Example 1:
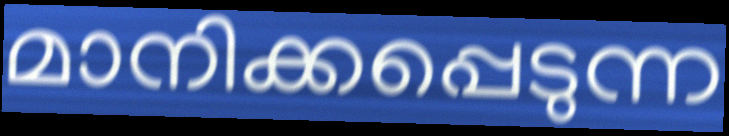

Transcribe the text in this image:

മാനിക്കപ്പെടുന്ന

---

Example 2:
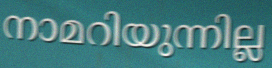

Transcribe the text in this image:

നാമറിയുന്നില്ല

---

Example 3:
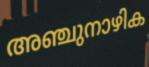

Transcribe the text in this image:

അഞ്ചുനാഴിക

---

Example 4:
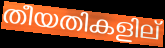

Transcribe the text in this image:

തീയതികളില്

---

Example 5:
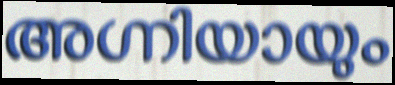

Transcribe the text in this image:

അഗ്നിയായും